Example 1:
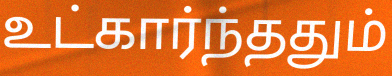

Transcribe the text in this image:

உட்கார்ந்ததும்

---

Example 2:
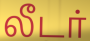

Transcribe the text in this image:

லீடர்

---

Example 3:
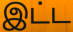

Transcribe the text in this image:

இட்ட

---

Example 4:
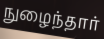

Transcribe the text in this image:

நுழைந்தார்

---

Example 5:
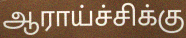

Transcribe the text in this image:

ஆராய்ச்சிக்கு